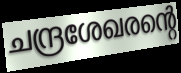
ചന്ദ്രശേഖരന്റെ